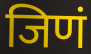
जिणं